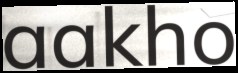
aakho